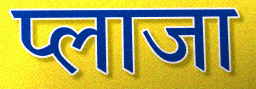
प्लाजा